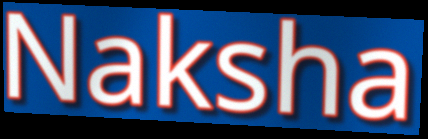
Naksha